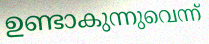
ഉണ്ടാകുന്നുവെന്ന്